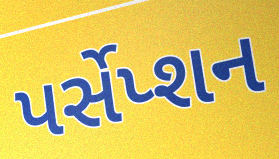
પર્સેપ્શન